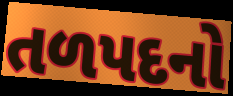
તળપદનો